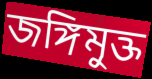
জঙ্গিমুক্ত